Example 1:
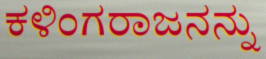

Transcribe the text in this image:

ಕಳಿಂಗರಾಜನನ್ನು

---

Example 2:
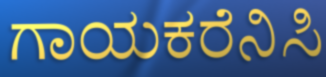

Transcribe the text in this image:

ಗಾಯಕರೆನಿಸಿ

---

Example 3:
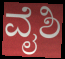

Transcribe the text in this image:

ವೈಶಿ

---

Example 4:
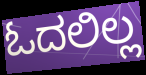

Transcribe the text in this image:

ಓದಲಿಲ್ಲ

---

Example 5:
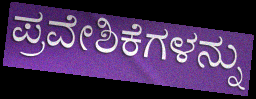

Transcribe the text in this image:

ಪ್ರವೇಶಿಕೆಗಳನ್ನು